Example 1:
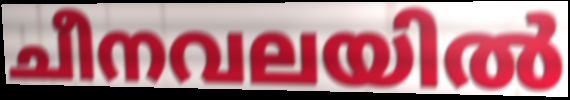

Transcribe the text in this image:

ചീനവലയിൽ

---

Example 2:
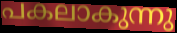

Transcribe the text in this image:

പകലാകുന്നു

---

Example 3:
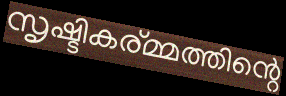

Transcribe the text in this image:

സൃഷ്ടികര്മ്മത്തിന്റെ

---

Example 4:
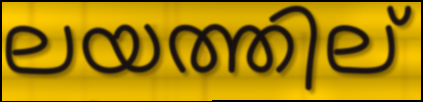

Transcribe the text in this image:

ലയത്തില്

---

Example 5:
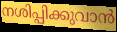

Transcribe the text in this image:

നശിപ്പിക്കുവാൻ